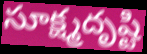
సూక్ష్మదృష్టి